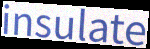
insulate